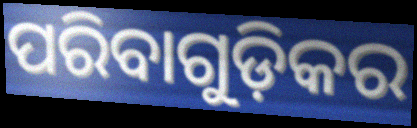
ପରିବାଗୁଡ଼ିକର